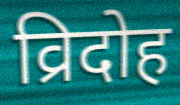
व्रिदोह